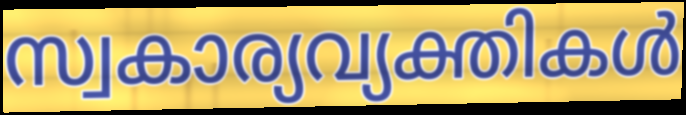
സ്വകാര്യവ്യക്തികൾ